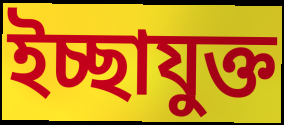
ইচ্ছাযুক্ত